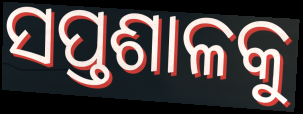
ସପ୍ତଶାଳକୁ